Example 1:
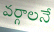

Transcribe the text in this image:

వర్గాలనే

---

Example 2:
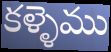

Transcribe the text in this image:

కళ్ళెము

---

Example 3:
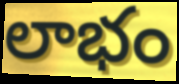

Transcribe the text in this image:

లాభం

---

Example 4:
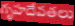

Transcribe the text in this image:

గృహదేవతలు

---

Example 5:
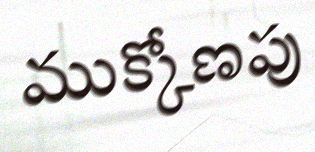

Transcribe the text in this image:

ముక్కోణపు